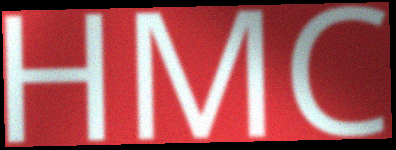
HMC